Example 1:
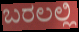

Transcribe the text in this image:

ಬರಲಲ್ಲಿ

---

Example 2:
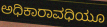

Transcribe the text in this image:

ಅಧಿಕಾರಾವಧಿಯೂ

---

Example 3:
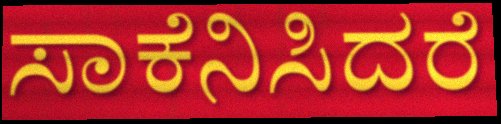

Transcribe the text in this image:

ಸಾಕೆನಿಸಿದರೆ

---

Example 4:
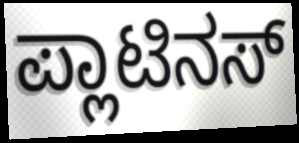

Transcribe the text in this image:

ಪ್ಲಾಟಿನಸ್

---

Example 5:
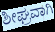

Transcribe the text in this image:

ಶೀಘ್ರವಾಗಿ